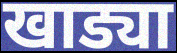
खाड्या